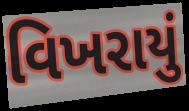
વિખરાયું